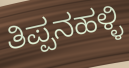
ತಿಪ್ಪನಹಳ್ಳಿ